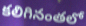
కలిగినంతలో